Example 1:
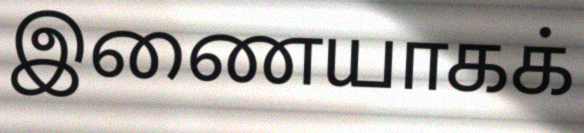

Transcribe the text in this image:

இணையாகக்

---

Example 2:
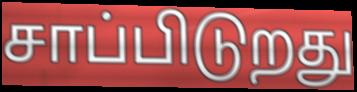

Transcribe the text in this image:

சாப்பிடுறது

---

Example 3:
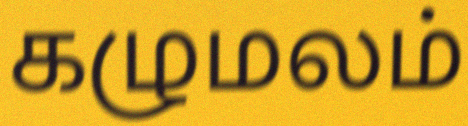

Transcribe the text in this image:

கழுமலம்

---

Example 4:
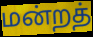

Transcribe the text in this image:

மன்றத்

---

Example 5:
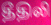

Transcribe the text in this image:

தீதிலி